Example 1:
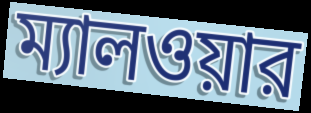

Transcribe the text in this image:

ম্যালওয়ার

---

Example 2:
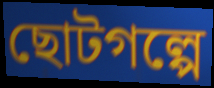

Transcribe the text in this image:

ছোটগল্পে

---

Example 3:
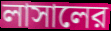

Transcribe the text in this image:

লাসালের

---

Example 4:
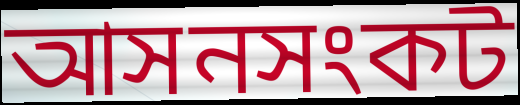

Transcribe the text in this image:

আসনসংকট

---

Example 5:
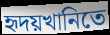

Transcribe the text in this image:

হৃদয়খানিতে